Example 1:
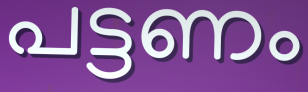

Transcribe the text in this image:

പട്ടണം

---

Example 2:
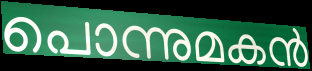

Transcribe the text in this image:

പൊന്നുമകൻ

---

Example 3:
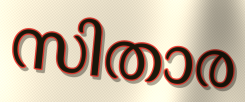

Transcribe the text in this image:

സിതാര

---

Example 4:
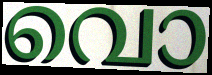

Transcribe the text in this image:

വൊ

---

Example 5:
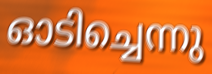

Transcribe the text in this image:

ഓടിച്ചെന്നു